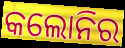
କଲୋନିର